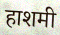
हाशमी